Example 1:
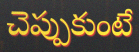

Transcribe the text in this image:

చెప్పుకుంటే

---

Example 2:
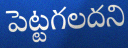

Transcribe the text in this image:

పెట్టగలదని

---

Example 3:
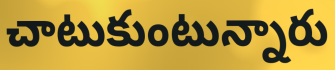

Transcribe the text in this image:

చాటుకుంటున్నారు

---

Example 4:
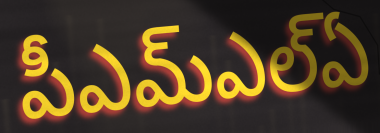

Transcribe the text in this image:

పీఎమ్ఎల్ఏ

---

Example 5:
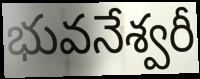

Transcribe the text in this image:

భువనేశ్వరీ